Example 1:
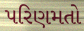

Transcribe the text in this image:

પરિણમતો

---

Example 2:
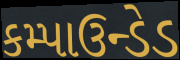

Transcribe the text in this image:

કમ્પાઉન્ડેડ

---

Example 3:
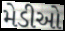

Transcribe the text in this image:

મેડીઓ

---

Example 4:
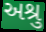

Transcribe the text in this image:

અશ્રુ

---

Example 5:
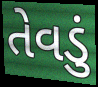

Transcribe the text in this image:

તેવડું